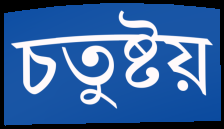
চতুষ্টয়